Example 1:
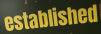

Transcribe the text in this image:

established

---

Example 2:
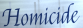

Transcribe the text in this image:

Homicide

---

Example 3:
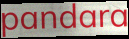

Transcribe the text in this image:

pandara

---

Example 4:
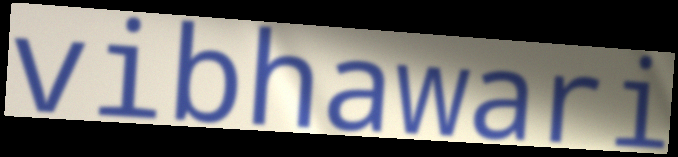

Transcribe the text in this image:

vibhawari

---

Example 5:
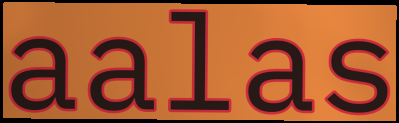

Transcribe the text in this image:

aalas